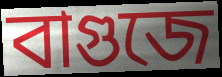
বাগুজে